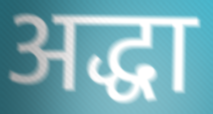
अद्धा